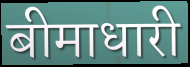
बीमाधारी